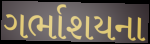
ગર્ભાશયના